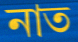
নাত